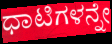
ಧಾಟಿಗಳನ್ನೇ